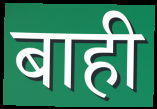
बाही